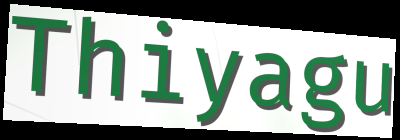
Thiyagu